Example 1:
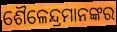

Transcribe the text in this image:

ଶୈଳେନ୍ଦ୍ରମାନଙ୍କର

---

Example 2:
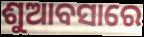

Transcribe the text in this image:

ଶୁଆବସାରେ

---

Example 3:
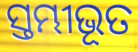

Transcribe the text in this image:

ସ୍ତମ୍ଭୀଭୂତ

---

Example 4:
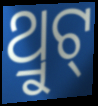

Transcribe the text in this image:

ଥ୍ରୁଟ୍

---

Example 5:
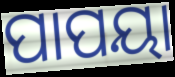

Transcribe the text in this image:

ପାପୟା